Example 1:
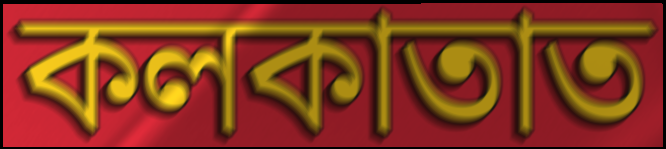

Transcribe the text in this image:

কলকাতাত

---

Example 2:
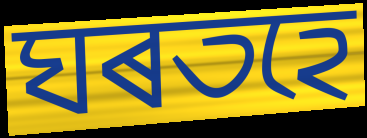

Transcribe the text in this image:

ঘৰতহে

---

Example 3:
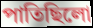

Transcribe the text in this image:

পাতিছিলো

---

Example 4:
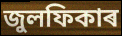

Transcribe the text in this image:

জুলফিকাৰ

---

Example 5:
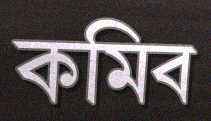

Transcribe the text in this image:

কমিব